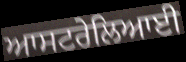
ਆਸਟਰੇਲਿਆਈ